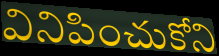
వినిపించుకోని